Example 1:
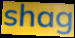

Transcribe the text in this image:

shag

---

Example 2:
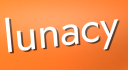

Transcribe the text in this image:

lunacy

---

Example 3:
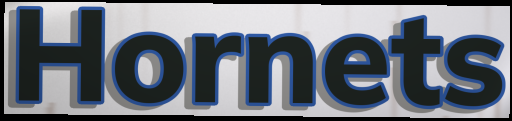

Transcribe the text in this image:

Hornets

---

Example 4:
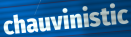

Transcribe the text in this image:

chauvinistic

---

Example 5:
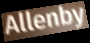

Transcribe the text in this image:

Allenby